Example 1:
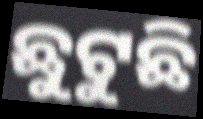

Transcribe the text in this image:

ଛୁଟୁଛି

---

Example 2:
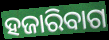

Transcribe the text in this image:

ହଜାରିବାଗ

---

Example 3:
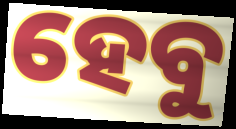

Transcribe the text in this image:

ହେବୁ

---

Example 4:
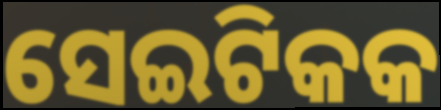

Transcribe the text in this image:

ସେଇଟିକକ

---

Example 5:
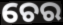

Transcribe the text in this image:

ଚେର